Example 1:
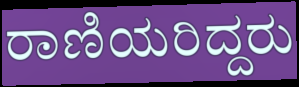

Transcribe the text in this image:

ರಾಣಿಯರಿದ್ದರು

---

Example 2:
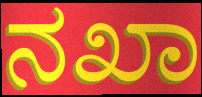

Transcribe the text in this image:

ನಖಾ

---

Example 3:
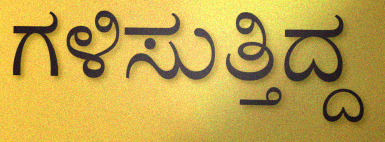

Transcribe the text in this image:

ಗಳಿಸುತ್ತಿದ್ದ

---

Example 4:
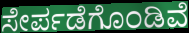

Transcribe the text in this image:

ಸೇರ್ಪಡೆಗೊಂಡಿವೆ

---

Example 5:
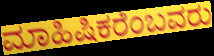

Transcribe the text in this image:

ಮಾಹಿಷಿಕರೆಂಬವರು